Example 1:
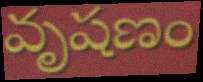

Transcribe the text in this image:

వృషణం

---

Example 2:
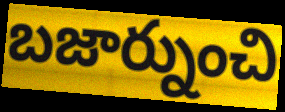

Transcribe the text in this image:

బజార్నుంచి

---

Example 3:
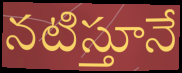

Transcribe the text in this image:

నటిస్తూనే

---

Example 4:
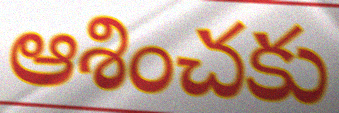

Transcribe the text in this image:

ఆశించకు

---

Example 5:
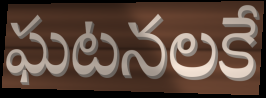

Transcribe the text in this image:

ఘటనలకే